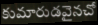
కుమారుడవైనచో